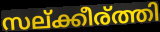
സല്ക്കീര്ത്തി